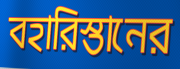
বহারিস্তানের